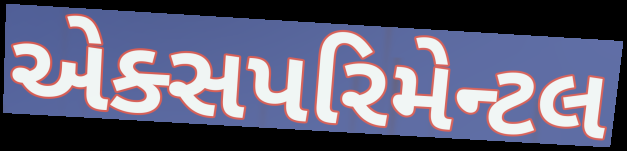
એક્સપરિમેન્ટલ